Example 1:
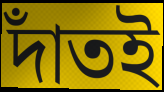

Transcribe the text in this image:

দাঁতই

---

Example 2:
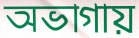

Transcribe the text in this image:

অভাগায়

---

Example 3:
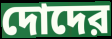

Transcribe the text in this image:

দোদের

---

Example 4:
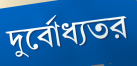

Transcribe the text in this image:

দুর্বোধ্যতর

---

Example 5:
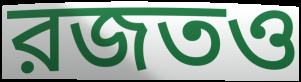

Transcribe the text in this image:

রজতও